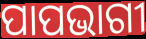
ପାପଭାଗୀ